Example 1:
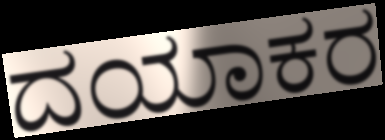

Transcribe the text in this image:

ದಯಾಕರ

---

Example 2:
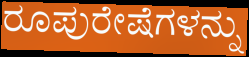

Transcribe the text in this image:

ರೂಪುರೇಷೆಗಳನ್ನು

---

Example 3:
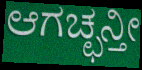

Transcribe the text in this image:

ಆಗಚ್ಛನ್ತೀ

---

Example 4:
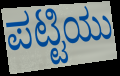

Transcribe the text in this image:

ಪಟ್ಟಿಯು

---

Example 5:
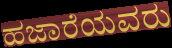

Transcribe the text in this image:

ಹಜಾರೆಯವರು